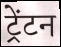
ट्रेंटन